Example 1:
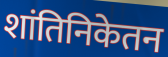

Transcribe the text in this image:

शांतिनिकेतन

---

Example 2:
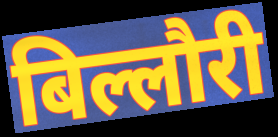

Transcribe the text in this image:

बिल्लौरी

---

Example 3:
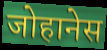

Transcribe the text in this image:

जोहानेस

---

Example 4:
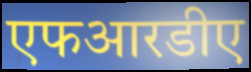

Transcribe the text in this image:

एफआरडीए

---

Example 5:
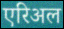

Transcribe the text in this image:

एरिअल